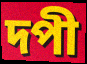
দপী